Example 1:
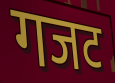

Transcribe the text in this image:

गजट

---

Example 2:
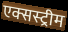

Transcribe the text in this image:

एक्सस्ट्रीम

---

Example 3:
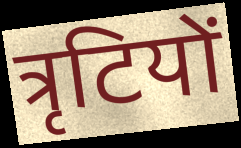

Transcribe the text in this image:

त्रृटियों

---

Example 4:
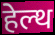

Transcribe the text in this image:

हेल्‍थ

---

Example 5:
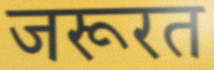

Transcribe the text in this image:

जरूरत